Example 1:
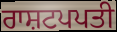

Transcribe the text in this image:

ਰਾਸ਼ਟਪਪਤੀ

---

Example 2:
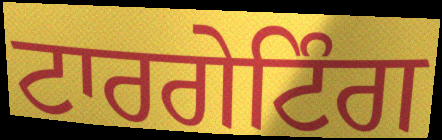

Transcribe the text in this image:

ਟਾਰਗੇਟਿੰਗ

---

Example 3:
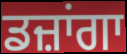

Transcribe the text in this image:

ਡਜ਼ਾਂਗਾ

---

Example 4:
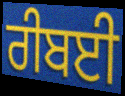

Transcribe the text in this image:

ਰੀਬਈ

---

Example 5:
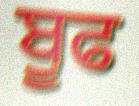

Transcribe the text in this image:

ਬੂਫ